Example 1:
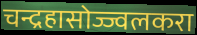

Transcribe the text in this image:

चन्द्रहासोज्ज्वलकरा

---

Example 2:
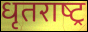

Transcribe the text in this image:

धृतराष्ट्र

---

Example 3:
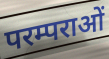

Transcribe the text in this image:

परम्पराओं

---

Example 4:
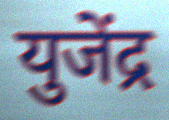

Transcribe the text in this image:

युजेंद्र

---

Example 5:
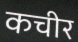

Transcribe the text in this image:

कचीर